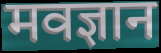
मवज्ञान